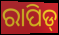
ରାପିଡ୍